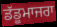
ਡੱਡੂਮਾਜਰਾ